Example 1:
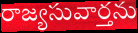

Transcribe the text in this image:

రాజ్యసువార్తను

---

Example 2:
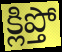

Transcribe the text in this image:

క్లిప్తో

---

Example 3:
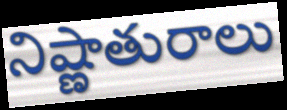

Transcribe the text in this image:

నిష్ణాతురాలు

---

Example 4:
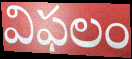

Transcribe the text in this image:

విఫలం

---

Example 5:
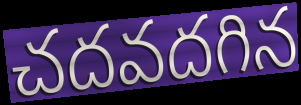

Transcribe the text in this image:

చదవదగిన